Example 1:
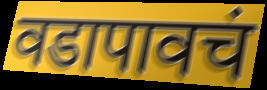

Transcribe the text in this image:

वडापावचं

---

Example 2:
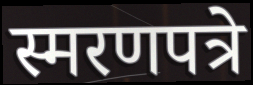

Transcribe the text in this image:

स्मरणपत्रे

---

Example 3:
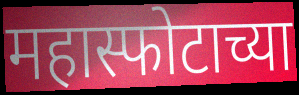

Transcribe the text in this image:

महास्फोटाच्या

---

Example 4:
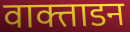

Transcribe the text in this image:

वाक्ताडन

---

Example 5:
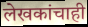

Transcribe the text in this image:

लेखकांचाही